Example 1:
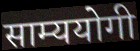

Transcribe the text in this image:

साम्ययोगी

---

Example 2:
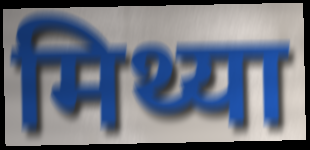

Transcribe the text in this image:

मिथ्या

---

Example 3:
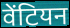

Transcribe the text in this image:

वेंटियन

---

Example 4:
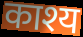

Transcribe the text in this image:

काश्य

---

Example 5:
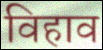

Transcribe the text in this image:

विहाव